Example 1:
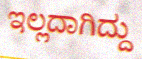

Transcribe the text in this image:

ಇಲ್ಲದಾಗಿದ್ದು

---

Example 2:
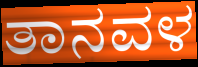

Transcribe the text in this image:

ತಾನವಳ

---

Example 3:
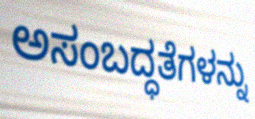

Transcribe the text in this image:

ಅಸಂಬದ್ಧತೆಗಳನ್ನು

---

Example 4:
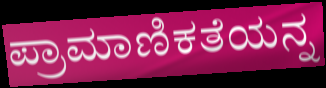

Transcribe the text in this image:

ಪ್ರಾಮಾಣಿಕತೆಯನ್ನ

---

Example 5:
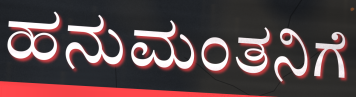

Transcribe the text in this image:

ಹನುಮಂತನಿಗೆ